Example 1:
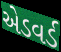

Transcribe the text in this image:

એડવર્ડ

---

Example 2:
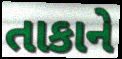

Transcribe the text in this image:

તાકાને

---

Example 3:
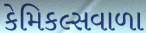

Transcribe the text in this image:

કેમિકલ્સવાળા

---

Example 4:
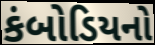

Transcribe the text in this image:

કંબોડિયનો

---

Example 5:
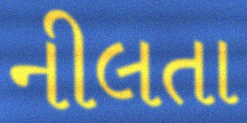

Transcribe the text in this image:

નીલતા